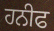
ਹਨੀਫ